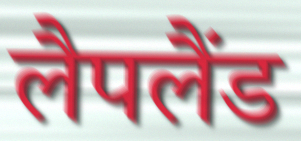
लैपलैंड